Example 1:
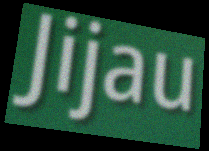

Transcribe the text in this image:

Jijau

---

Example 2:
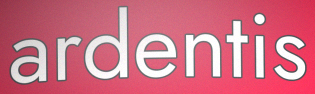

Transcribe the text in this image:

ardentis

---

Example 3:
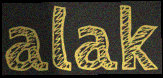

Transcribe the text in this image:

alak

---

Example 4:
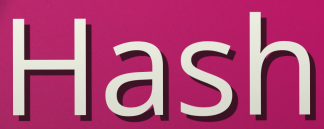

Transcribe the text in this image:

Hash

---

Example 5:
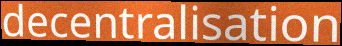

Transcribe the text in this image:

decentralisation